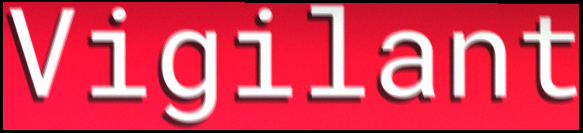
Vigilant